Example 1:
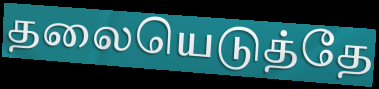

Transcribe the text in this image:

தலையெடுத்தே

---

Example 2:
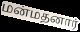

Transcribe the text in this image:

மன்மதனார்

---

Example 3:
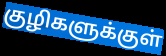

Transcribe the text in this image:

குழிகளுக்குள்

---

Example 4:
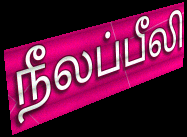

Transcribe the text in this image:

நீலப்பீலி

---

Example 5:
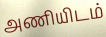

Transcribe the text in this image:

அணியிடம்